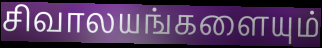
சிவாலயங்களையும்